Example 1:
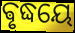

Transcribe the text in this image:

ଵୃଦ୍ଧୟେ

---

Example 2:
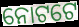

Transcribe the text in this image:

ନୋଟଟେ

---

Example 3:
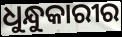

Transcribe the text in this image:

ଧୁନ୍ଧୁକାରୀର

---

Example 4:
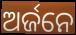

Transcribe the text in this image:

ଅର୍ଜନେ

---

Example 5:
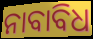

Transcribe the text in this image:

ନାବାବିଧ